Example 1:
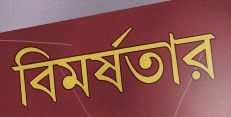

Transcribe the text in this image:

বিমর্ষতার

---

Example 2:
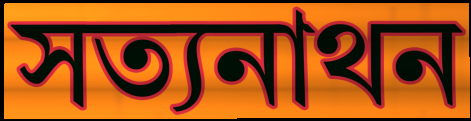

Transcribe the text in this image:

সত্যনাথন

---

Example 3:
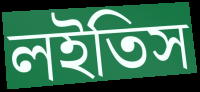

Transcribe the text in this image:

লইতিস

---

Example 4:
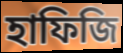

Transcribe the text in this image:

হাফিজি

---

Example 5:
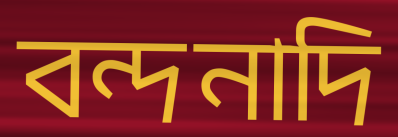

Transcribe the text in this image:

বন্দনাদি